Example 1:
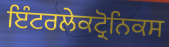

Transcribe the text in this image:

ਇੰਟਰਲੇਕਟ੍ਰੋਨਿਕਸ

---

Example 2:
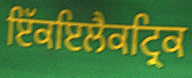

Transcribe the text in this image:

ਇੱਕਇਲੈਕਟ੍ਰਿਕ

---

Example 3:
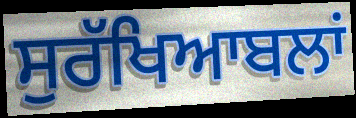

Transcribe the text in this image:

ਸੁਰੱਖਿਆਬਲਾਂ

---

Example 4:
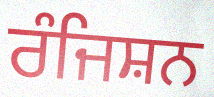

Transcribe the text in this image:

ਰੰਜਿਸ਼ਨ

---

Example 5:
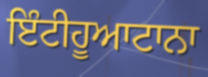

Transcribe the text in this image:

ਇੰਟੀਹੂਆਟਾਨਾ